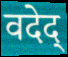
वदेद्